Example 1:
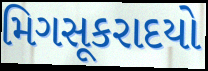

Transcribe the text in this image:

મિગસૂકરાદયો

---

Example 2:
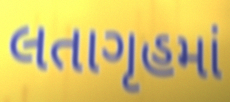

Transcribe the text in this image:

લતાગૃહમાં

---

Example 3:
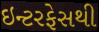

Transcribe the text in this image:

ઇન્ટરફેસથી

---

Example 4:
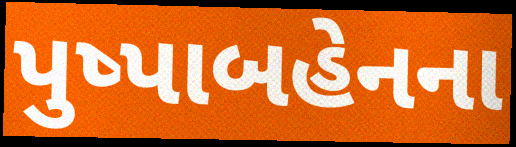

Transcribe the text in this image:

પુષ્પાબહેનના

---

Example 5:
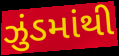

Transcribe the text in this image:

ઝુંડમાંથી